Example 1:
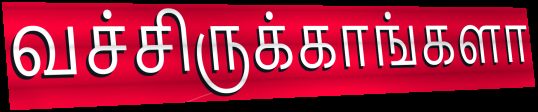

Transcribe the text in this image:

வச்சிருக்காங்களா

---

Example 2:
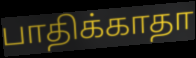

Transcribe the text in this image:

பாதிக்காதா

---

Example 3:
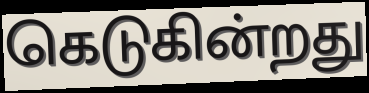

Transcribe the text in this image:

கெடுகின்றது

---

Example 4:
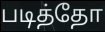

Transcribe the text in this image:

படித்தோ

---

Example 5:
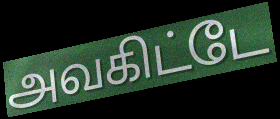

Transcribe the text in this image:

அவகிட்டே